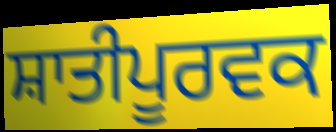
ਸ਼ਾਤੀਪੂਰਵਕ